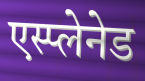
एस्प्लेनेड